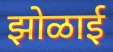
झोळाई